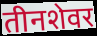
तीनशेवर